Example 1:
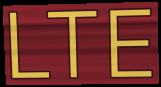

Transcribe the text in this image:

LTE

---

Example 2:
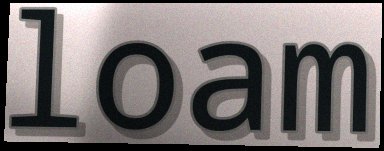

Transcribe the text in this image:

loam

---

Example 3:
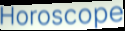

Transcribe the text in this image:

Horoscope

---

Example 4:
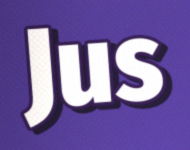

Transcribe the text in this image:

Jus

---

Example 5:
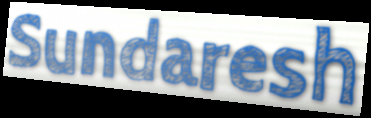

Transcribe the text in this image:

Sundaresh